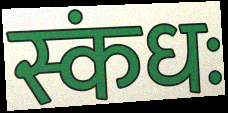
स्कंधः